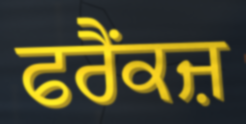
ਫਰੈਂਕਜ਼